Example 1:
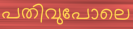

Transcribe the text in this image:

പതിവുപോലെ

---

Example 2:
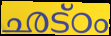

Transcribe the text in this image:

ഛട്ഠം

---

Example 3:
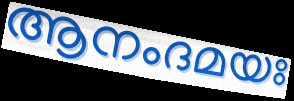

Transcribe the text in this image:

ആനംദമയഃ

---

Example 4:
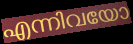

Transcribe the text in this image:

എന്നിവയോ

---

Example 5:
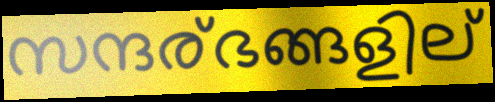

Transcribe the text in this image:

സന്ദര്ഭങ്ങളില്